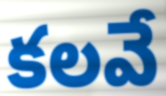
కలవే